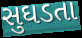
સુઘડતા